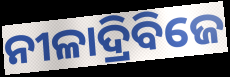
ନୀଳାଦ୍ରିବିଜେ